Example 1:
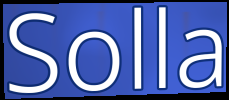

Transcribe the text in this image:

Solla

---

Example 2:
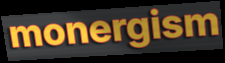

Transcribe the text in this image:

monergism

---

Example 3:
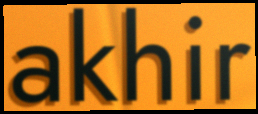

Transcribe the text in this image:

akhir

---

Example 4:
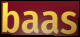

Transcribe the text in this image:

baas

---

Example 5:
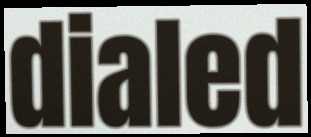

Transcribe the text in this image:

dialed